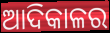
ଆଦିକାଳର